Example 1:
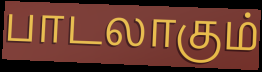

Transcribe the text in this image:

பாடலாகும்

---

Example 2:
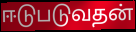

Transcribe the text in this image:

ஈடுபடுவதன்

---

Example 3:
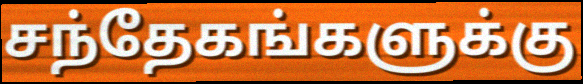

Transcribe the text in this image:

சந்தேகங்களுக்கு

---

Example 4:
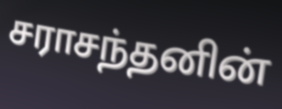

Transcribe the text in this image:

சராசந்தனின்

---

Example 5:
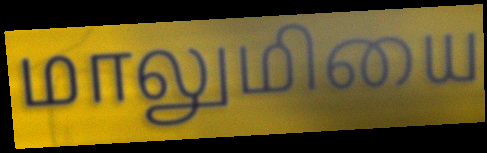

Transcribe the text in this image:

மாலுமியை